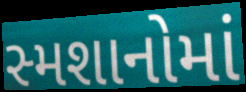
સ્મશાનોમાં